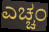
ಎಚ್ಚಂ